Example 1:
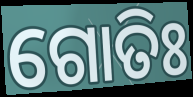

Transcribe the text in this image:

ଗୋତିଃ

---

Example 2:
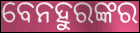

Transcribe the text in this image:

ବେନହୁରଙ୍କର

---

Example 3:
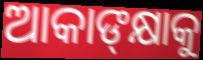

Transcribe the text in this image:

ଆକାଙ୍‍କ୍ଷାକୁ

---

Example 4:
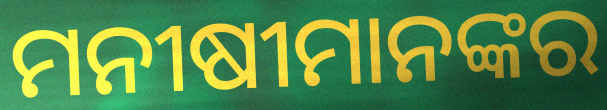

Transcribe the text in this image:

ମନୀଷୀମାନଙ୍କର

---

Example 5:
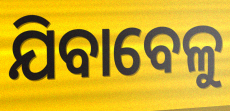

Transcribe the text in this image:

ଯିବାବେଳୁ